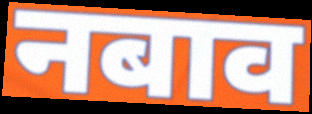
नबाव